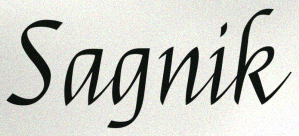
Sagnik